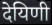
देयिणी